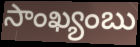
సాంఖ్యంబు